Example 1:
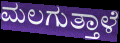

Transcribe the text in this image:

ಮಲಗುತ್ತಾಳೆ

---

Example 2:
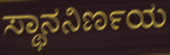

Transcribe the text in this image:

ಸ್ಥಾನನಿರ್ಣಯ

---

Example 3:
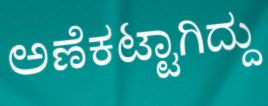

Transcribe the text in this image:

ಅಣೆಕಟ್ಟಾಗಿದ್ದು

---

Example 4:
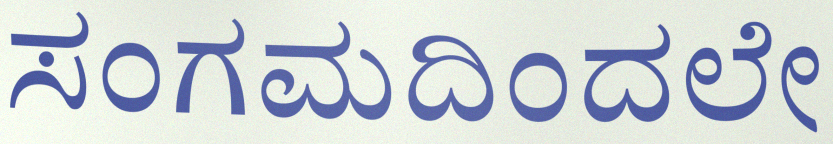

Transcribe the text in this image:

ಸಂಗಮದಿಂದಲೇ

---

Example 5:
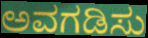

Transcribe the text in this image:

ಅವಗಡಿಸು